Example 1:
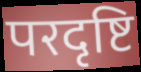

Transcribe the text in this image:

परदृष्टि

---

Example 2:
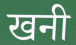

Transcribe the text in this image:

खनी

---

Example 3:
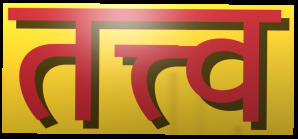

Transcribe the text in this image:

तत्त्व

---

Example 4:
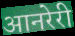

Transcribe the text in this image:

आनरेरी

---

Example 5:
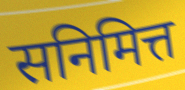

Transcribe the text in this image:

सनिमित्त